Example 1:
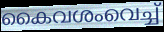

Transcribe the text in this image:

കൈവശംവെച്ച്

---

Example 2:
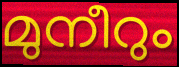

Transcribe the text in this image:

മുനീറും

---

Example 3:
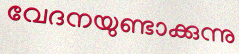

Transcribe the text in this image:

വേദനയുണ്ടാക്കുന്നു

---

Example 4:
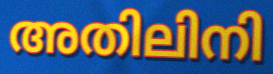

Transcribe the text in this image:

അതിലിനി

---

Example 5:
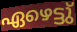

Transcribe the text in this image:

ഏഴെട്ടു്